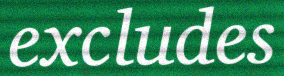
excludes